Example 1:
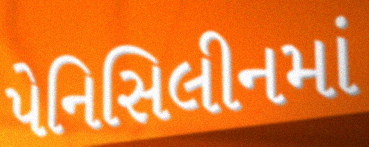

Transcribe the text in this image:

પેનિસિલીનમાં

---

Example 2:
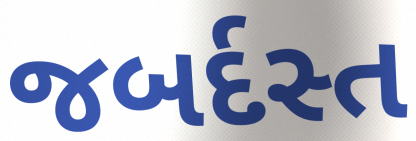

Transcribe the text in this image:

જબર્દસ્ત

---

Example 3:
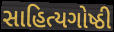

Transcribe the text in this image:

સાહિત્યગોષ્ઠી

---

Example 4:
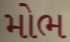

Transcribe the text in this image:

મોભ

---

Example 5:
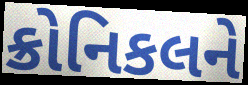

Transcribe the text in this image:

ક્રોનિકલને